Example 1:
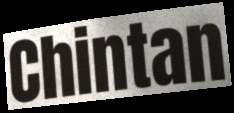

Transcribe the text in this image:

Chintan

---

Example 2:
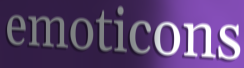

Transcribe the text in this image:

emoticons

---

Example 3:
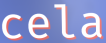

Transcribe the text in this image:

cela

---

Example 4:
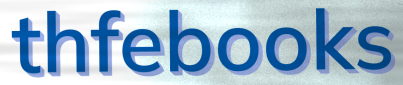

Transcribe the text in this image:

thfebooks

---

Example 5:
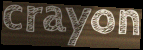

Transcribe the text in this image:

crayon